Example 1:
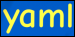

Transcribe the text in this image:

yaml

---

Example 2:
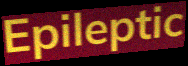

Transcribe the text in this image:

Epileptic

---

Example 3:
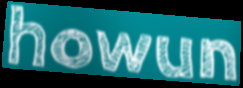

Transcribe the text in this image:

howun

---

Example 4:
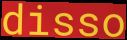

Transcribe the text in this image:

disso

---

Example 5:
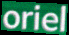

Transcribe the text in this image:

oriel